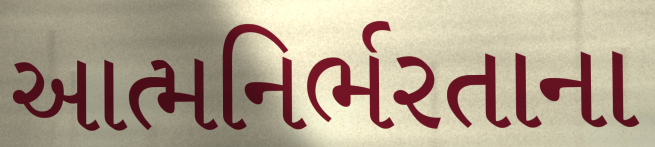
આત્મનિર્ભરતાના